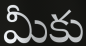
మీకు